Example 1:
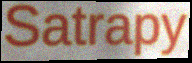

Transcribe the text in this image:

Satrapy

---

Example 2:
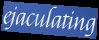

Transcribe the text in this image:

ejaculating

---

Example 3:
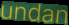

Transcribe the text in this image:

undan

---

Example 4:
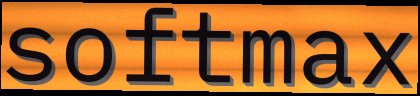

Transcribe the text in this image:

softmax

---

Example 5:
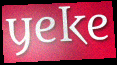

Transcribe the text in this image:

yeke